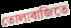
তোলাবাজিতে